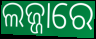
ଲଜ୍ଜାରେ